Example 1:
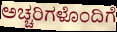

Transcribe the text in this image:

ಅಚ್ಚರಿಗಳೊಂದಿಗೆ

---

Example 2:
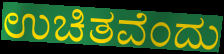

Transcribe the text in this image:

ಉಚಿತವೆಂದು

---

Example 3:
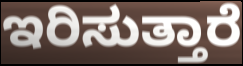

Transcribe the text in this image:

ಇರಿಸುತ್ತಾರೆ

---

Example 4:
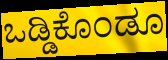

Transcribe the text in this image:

ಒಡ್ಡಿಕೊಂಡೂ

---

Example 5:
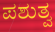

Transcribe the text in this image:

ಪಶುತ್ವ